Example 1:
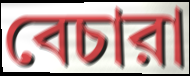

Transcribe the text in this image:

বেচারা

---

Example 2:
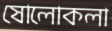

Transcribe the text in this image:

ষোলোকলা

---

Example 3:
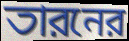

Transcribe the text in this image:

তারনের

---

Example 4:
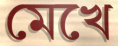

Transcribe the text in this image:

মেখে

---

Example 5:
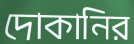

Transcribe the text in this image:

দোকানির